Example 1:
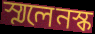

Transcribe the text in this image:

স্মলেনস্ক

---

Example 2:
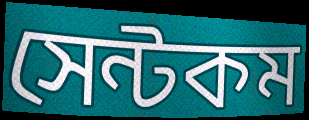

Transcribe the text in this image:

সেন্টকম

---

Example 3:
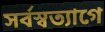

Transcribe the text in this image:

সর্বস্বত্যাগে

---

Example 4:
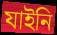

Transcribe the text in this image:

যাইনি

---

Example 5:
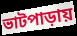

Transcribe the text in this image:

ভাটপাড়ায়